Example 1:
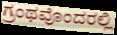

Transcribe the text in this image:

ಗ್ರಂಥವೊಂದರಲ್ಲಿ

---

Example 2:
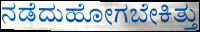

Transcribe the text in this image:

ನಡೆದುಹೋಗಬೇಕಿತ್ತು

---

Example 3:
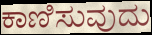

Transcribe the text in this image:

ಕಾಣಿಸುವುದು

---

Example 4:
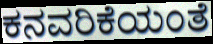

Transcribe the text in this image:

ಕನವರಿಕೆಯಂತೆ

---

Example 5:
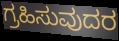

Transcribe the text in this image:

ಗ್ರಹಿಸುವುದರ